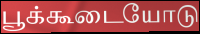
பூக்கூடையோடு